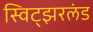
स्विट्झरलंड